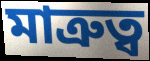
মাত্রুত্ব